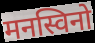
मनस्विनो